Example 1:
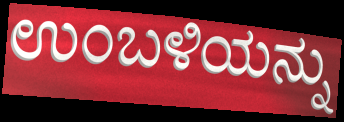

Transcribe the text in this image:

ಉಂಬಳಿಯನ್ನು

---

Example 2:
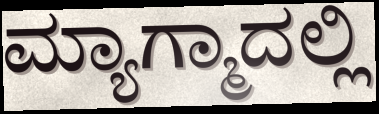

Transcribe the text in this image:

ಮ್ಯಾಗ್ಮಾದಲ್ಲಿ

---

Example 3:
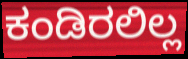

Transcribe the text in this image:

ಕಂಡಿರಲಿಲ್ಲ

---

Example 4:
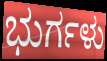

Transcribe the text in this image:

ಭುರ್ಗಳು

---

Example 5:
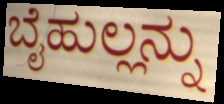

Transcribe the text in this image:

ಬೈಹುಲ್ಲನ್ನು